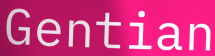
Gentian